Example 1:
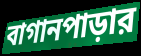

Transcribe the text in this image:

বাগানপাড়ার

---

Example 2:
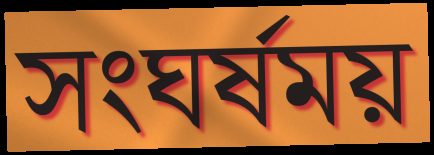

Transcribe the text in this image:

সংঘর্ষময়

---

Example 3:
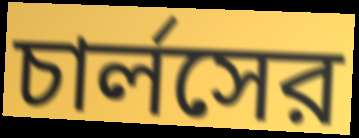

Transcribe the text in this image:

চার্লসের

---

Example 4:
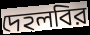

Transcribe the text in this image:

দেহলবির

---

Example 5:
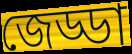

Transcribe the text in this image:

জেড্ডা